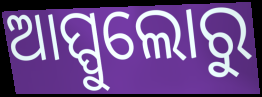
ଆପ୍ପୁଲୋରୁ